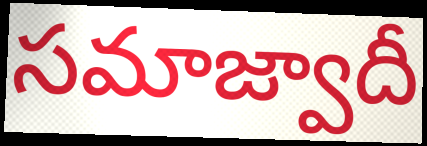
సమాజ్వాదీ